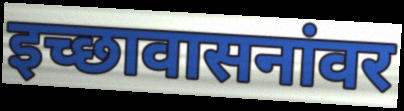
इच्छावासनांवर